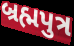
બ્રહ્મપુત્ર